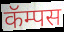
कॅम्पस